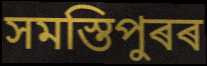
সমস্তিপুৰৰ